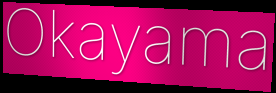
Okayama